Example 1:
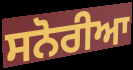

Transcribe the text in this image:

ਸਨੋਰੀਆ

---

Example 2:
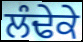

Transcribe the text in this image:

ਲੰਢੇਕੇ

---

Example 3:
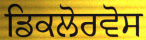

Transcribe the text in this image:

ਡਿਕਲੋਰਵੋਸ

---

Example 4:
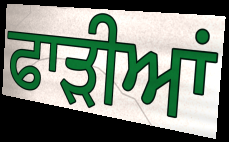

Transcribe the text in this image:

ਫਾੜੀਆਂ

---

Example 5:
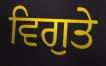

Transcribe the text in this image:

ਵਿਗੁਤੇ